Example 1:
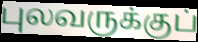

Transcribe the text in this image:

புலவருக்குப்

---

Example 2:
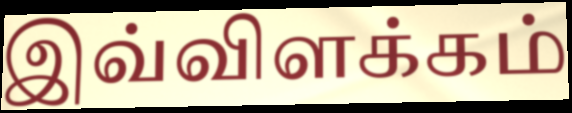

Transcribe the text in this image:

இவ்விளக்கம்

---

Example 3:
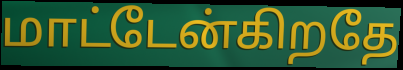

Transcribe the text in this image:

மாட்டேன்கிறதே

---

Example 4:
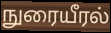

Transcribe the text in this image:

நுரையீரல்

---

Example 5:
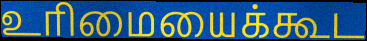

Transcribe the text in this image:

உரிமையைக்கூட